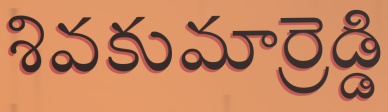
శివకుమార్రెడ్డి